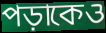
পড়াকেও